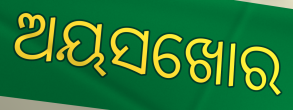
ଅୟସଖୋର